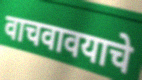
वाचवावयाचे